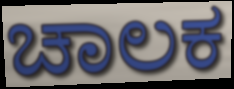
ಚಾಲಕ